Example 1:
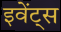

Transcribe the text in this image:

इवेंट्स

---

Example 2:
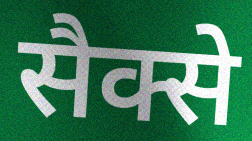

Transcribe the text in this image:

सैक्से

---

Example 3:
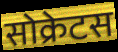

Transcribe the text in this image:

सोक्रेटस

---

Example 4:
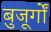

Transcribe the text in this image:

बुजूर्गों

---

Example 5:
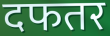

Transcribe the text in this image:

दफतर